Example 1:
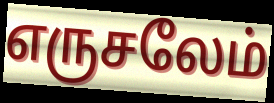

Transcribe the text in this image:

எருசலேம்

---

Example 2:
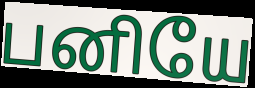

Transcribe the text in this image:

பனியே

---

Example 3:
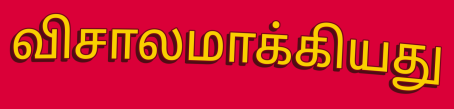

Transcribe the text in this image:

விசாலமாக்கியது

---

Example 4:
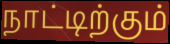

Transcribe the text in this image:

நாட்டிற்கும்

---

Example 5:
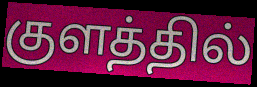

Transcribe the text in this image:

குளத்தில்